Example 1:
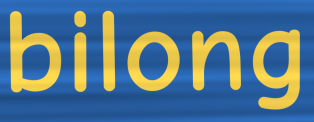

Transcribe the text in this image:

bilong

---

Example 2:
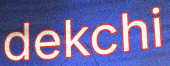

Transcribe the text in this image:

dekchi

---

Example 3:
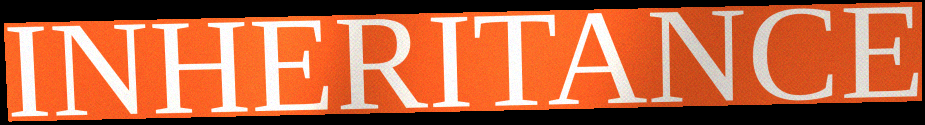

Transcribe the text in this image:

INHERITANCE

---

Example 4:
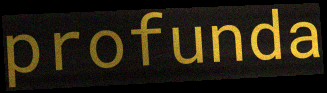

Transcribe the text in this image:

profunda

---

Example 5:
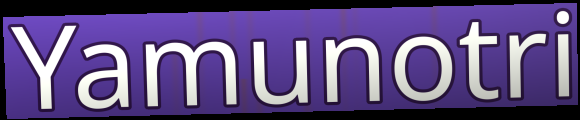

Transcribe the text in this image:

Yamunotri